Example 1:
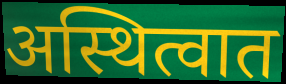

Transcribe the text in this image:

अस्थित्वात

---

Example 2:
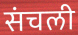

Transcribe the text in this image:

संचली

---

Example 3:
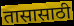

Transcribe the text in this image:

तासासाठी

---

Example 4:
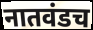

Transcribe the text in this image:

नातवंडच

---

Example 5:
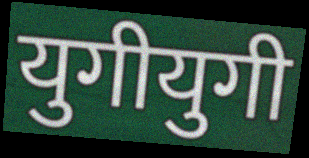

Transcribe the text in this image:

युगीयुगी